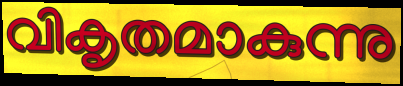
വികൃതമാകുന്നു